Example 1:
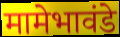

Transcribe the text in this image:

मामेभावंडे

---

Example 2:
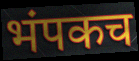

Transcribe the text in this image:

भंपकच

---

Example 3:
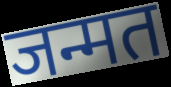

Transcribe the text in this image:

जन्मत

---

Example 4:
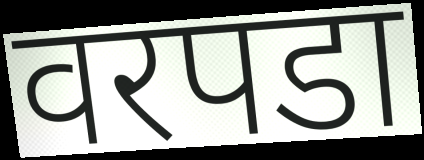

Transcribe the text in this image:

वरपडा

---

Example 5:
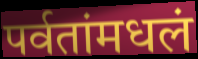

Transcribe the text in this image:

पर्वतांमधलं